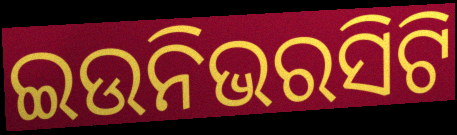
ଇଉନିଭରସିଟି